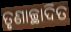
ତୃଣାଚ୍ଛାଦିତ